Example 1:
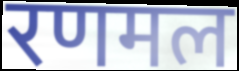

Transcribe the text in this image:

रणमल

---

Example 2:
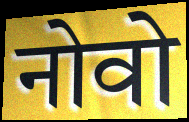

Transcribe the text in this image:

नोवो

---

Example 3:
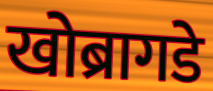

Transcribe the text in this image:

खोब्रागडे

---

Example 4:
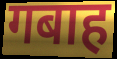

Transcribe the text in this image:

गबाह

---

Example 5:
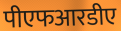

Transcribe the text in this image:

पीएफआरडीए